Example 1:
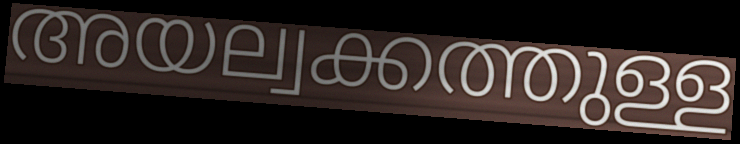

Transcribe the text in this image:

അയല്വക്കത്തുള്ള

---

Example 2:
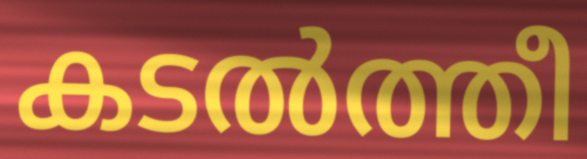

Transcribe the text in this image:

കടൽത്തീ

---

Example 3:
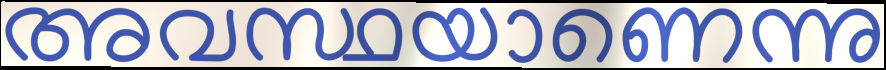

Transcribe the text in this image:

അവസ്ഥയാണെന്നു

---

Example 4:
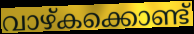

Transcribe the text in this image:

വാഴ്കക്കൊണ്ട്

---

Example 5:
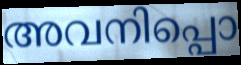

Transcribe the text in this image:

അവനിപ്പൊ